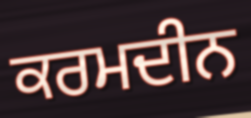
ਕਰਮਦੀਨ